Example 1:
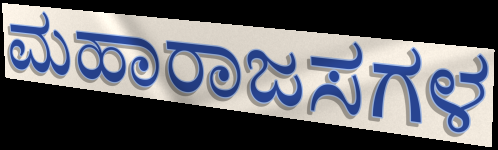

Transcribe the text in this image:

ಮಹಾರಾಜಸಗಳ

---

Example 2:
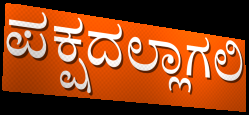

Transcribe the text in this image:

ಪಕ್ಷದಲ್ಲಾಗಲಿ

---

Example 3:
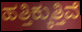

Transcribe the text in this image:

ಹತ್ತಿಕ್ಕುತ್ತಿವೆ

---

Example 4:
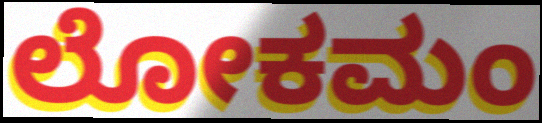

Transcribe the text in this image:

ಲೋಕಮಂ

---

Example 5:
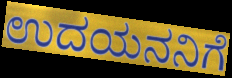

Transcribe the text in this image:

ಉದಯನನಿಗೆ